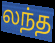
லந்த